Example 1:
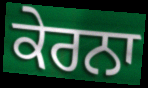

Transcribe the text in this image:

ਕੇਰਨਾ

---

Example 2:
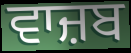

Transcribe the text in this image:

ਵਾਜ਼ਬ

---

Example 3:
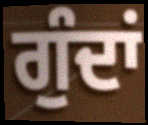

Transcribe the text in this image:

ਗੁੰਦਾਂ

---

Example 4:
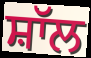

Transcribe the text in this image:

ਸ਼ਾੱਲ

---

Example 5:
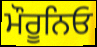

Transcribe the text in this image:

ਮੌਰੂਨਿਓ